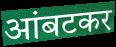
आंबटकर